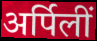
अर्पिलीं